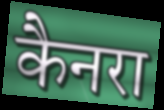
कैनरा